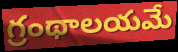
గ్రంథాలయమే